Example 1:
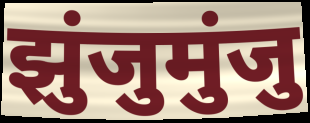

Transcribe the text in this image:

झुंजुमुंजु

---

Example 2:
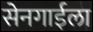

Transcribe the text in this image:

सेनगाईला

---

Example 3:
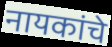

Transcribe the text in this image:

नायकांचे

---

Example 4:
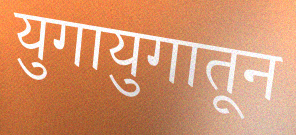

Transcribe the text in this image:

युगायुगातून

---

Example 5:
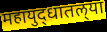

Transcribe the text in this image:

महायुद्धातल्या